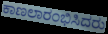
ಕಾಣಲಾರಂಭಿಸಿದರು